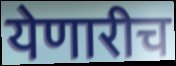
येणारीच